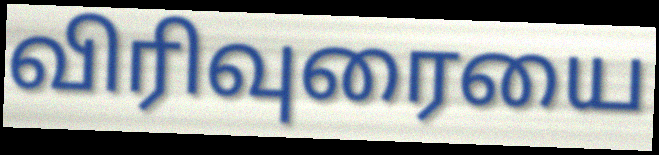
விரிவுரையை